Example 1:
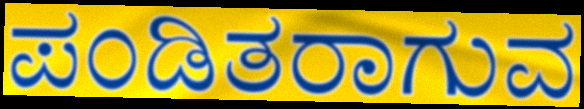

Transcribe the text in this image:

ಪಂಡಿತರಾಗುವ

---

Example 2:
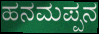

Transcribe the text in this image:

ಹನಮಪ್ಪನ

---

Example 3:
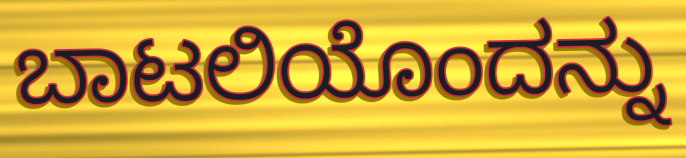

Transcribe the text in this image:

ಬಾಟಲಿಯೊಂದನ್ನು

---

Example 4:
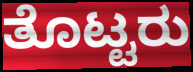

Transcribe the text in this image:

ತೊಟ್ಟರು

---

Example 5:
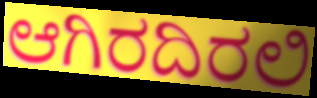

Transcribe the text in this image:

ಆಗಿರದಿರಲಿ